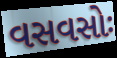
વસવસોઃ